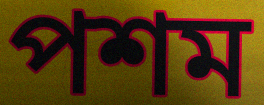
পশম